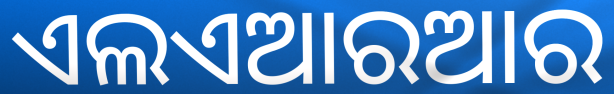
ଏଲଏଆରଆର